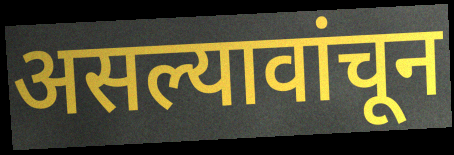
असल्यावांचून